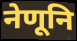
नेणूनि